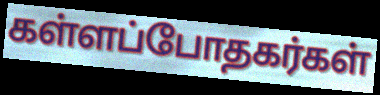
கள்ளப்போதகர்கள்